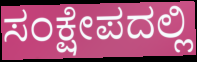
ಸಂಕ್ಷೇಪದಲ್ಲಿ